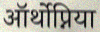
ऑर्थोप्निया